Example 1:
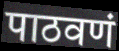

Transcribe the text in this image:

पाठवणं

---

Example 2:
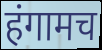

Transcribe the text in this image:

हंगामच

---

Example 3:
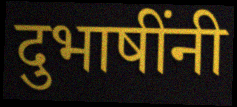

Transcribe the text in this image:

दुभाषींनी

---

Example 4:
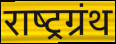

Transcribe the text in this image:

राष्ट्रग्रंथ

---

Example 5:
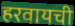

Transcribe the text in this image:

हरवायची